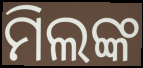
ମିଲଙ୍କ